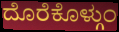
ದೊರೆಕೊಳ್ಗುಂ